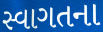
સ્વાગતના